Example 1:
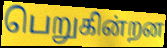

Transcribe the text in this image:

பெறுகின்றன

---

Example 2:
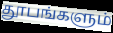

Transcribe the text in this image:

தூபங்களும்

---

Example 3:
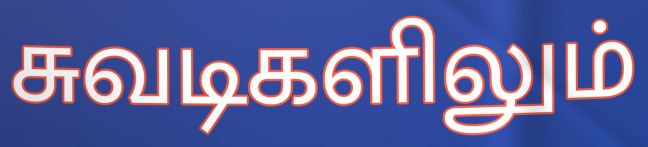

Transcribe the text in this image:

சுவடிகளிலும்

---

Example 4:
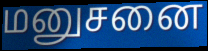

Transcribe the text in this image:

மனுசனை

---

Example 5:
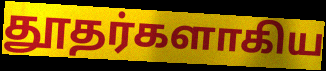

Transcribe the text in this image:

தூதர்களாகிய